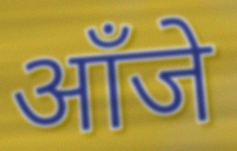
आँजे